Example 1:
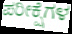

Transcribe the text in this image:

ಪರೀಕ್ಷೆಗಳ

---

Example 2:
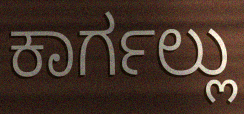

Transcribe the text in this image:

ಕಾರ್ಗಲ್ಲು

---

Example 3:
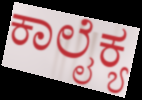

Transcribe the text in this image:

ಕಾಲೈಕ್ಯ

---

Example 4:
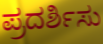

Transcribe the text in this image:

ಪ್ರದರ್ಶಿಸು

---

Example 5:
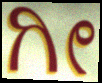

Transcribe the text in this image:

ಗೀ